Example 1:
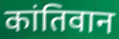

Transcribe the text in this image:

कांतिवान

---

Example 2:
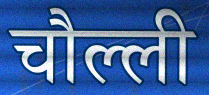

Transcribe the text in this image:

चौल्ली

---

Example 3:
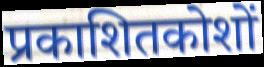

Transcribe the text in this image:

प्रकाशितकोशों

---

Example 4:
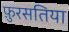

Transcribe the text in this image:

फ़ुरसतिया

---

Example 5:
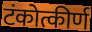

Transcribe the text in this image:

टंकोत्कीर्ण